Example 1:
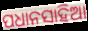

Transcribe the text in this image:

ପଧାନସାହିଆ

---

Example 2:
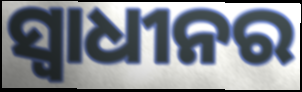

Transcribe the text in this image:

ସ୍ୱାଧୀନର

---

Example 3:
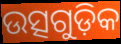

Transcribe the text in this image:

ଉତ୍ସଗୁଡ଼ିକ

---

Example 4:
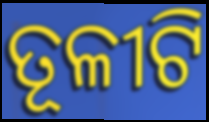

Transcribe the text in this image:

ତୂଳୀଟି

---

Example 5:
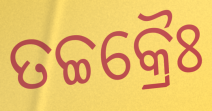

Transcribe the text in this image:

ତଚ୍ଚକ୍ରୈଃ